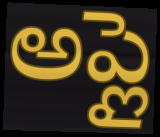
అప్లై